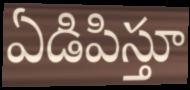
ఏడిపిస్తూ